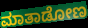
ಮಾತಾಡೋಣ